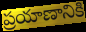
ప్రయాణానికి